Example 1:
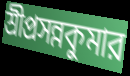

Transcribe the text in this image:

শ্রীপ্রসন্নকুমার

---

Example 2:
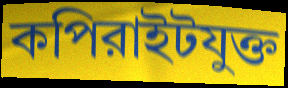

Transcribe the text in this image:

কপিরাইটযুক্ত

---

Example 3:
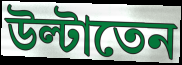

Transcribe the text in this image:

উল্টাতেন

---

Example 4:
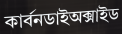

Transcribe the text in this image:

কার্বনডাইঅক্সাইড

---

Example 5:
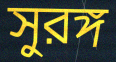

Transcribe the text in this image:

সুরঙ্গ